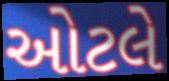
ઓટલે